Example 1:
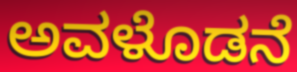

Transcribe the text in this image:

ಅವಳೊಡನೆ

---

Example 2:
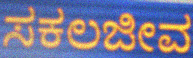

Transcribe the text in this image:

ಸಕಲಜೀವ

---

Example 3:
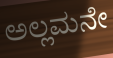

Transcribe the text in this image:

ಅಲ್ಲಮನೇ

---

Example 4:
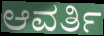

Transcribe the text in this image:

ಆವರ್ತಿ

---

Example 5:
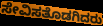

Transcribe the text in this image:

ಸೇವಿಸತೊಡಗಿದರು